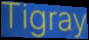
Tigray